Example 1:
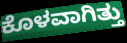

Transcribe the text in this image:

ಕೊಳವಾಗಿತ್ತು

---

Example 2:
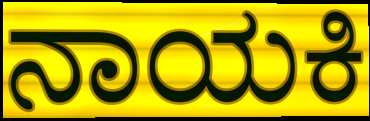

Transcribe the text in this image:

ನಾಯಕಿ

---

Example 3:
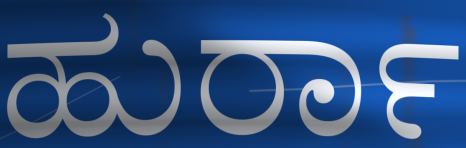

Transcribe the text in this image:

ಹುರ್ರಾ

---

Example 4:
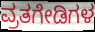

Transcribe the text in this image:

ವ್ರತಗೇಡಿಗಳ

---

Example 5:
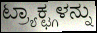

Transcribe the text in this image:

ಟ್ರ್ಯಾಕ್ಟ್ಗಳನ್ನು